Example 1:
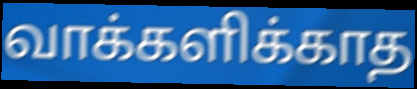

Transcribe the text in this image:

வாக்களிக்காத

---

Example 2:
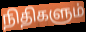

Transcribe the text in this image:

நிதிகளும்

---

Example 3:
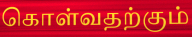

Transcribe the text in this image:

கொள்வதற்கும்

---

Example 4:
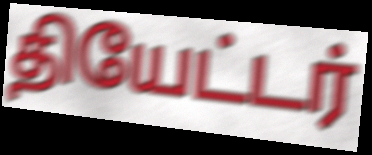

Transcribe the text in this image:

தியேட்டர்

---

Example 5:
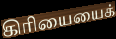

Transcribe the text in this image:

கிரியையைக்